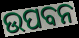
ଉପବନ